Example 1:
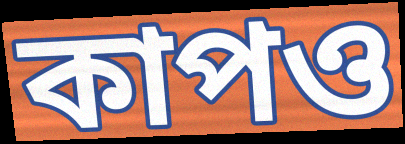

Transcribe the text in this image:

কাপও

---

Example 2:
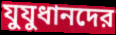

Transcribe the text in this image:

যুযুধানদের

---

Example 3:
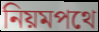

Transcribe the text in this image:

নিয়মপথে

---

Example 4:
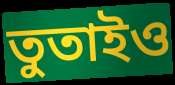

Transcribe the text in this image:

তুতাইও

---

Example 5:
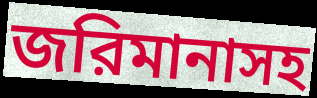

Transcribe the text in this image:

জরিমানাসহ